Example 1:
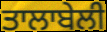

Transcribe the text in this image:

ਤਾਲਾਬੇਲੀ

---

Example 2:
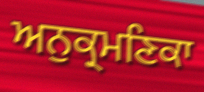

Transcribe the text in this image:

ਅਨੁਕ੍ਰਮਣਿਕਾ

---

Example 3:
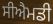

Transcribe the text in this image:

ਸੀਐਮਡੀ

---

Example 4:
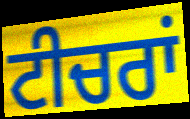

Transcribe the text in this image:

ਟੀਚਰਾਂ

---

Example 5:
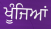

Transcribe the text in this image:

ਖੂੰਜਿਆਂ